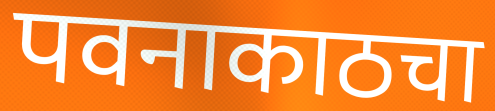
पवनाकाठचा